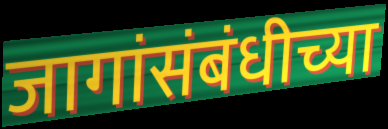
जागांसंबंधीच्या